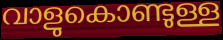
വാളുകൊണ്ടുള്ള